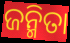
ଜନ୍ମିତା